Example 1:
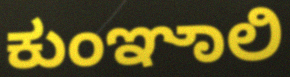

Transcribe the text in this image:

ಕುಂಞಾಲಿ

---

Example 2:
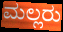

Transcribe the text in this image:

ಮಲ್ಲರು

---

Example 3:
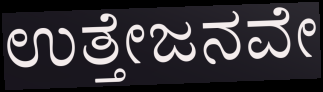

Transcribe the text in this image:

ಉತ್ತೇಜನವೇ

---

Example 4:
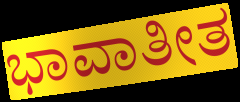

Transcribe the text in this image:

ಭಾವಾತೀತ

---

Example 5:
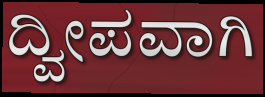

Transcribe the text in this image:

ದ್ವೀಪವಾಗಿ